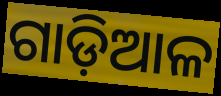
ଗାଡ଼ିଆଳ